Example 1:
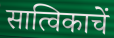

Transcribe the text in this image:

सात्विकाचें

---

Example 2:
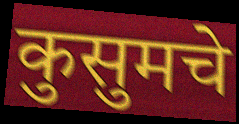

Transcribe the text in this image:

कुसुमचे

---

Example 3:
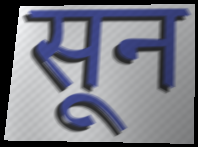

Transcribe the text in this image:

सून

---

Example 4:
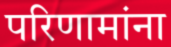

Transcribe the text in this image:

परिणामांना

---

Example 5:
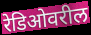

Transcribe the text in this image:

रेडिओवरील